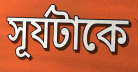
সূর্যটাকে